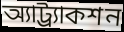
অ্যাট্র্যাকশন